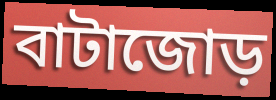
বাটাজোড়